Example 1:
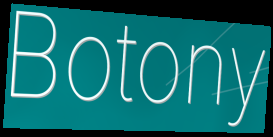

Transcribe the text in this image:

Botony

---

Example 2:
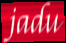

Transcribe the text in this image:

jadu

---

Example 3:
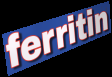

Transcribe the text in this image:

ferritin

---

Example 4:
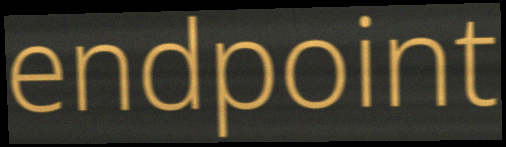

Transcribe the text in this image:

endpoint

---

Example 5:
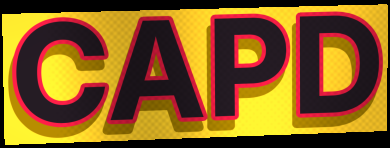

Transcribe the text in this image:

CAPD